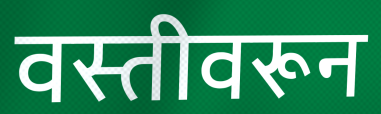
वस्तीवरून